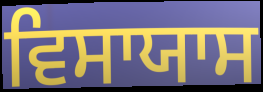
ਵਿਸਾਯਾਸ